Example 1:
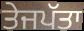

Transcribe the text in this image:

ਤੇਜਪੱਤਾ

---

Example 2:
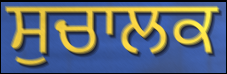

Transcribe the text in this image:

ਸੁਚਾਲਕ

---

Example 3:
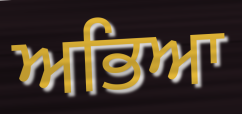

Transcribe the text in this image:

ਅਭਿਆ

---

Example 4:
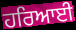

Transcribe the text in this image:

ਹਰਿਆਈ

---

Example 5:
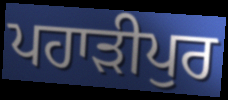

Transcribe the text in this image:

ਪਹਾੜੀਪੁਰ